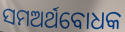
ସମଅର୍ଥବୋଧକ